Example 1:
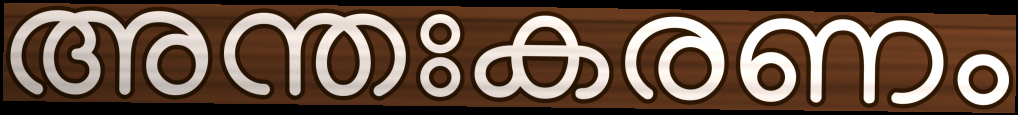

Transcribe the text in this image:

അന്തഃകരണം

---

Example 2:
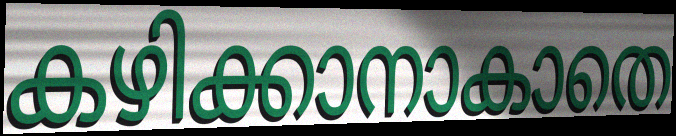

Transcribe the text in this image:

കഴിക്കാനാകാതെ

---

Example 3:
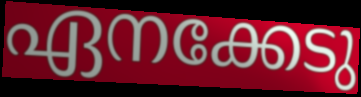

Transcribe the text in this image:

ഏനക്കേടു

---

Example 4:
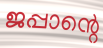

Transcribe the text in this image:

ജപ്പാന്റെ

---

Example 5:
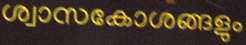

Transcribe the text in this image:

ശ്വാസകോശങ്ങളും